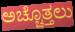
ಅಚ್ಚೊತ್ತಲು